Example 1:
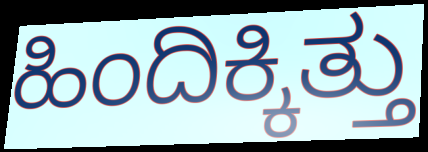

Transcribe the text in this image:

ಹಿಂದಿಕ್ಕಿತ್ತು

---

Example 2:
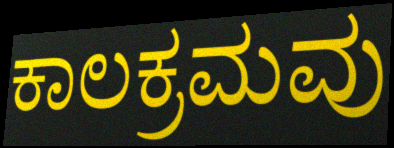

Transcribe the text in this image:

ಕಾಲಕ್ರಮವು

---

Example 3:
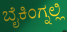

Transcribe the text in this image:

ಬೈಕಿಂಗ್ನಲ್ಲಿ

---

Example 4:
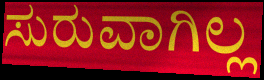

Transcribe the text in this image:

ಸುರುವಾಗಿಲ್ಲ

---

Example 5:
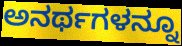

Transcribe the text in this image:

ಅನರ್ಥಗಳನ್ನೂ